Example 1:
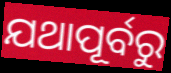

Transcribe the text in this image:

ଯଥାପୂର୍ବରୁ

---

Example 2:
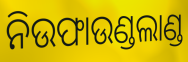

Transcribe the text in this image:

ନିଉଫାଉଣ୍ଡଲାଣ୍ଡ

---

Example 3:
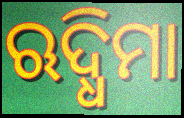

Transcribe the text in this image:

ଋଦ୍ଧିମା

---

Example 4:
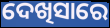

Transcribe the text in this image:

ଦେଖିସାରେ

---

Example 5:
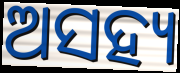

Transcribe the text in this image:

ଅସହ୍ୟ